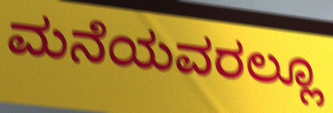
ಮನೆಯವರಲ್ಲೂ